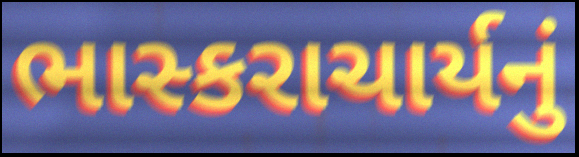
ભાસ્કરાચાર્યનું